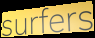
surfers